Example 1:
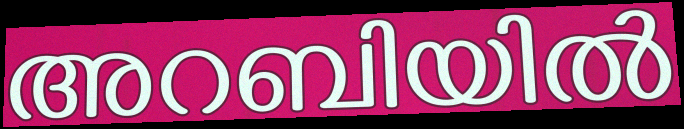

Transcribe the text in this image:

അറബിയിൽ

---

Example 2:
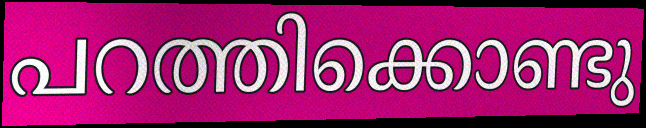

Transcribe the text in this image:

പറത്തിക്കൊണ്ടു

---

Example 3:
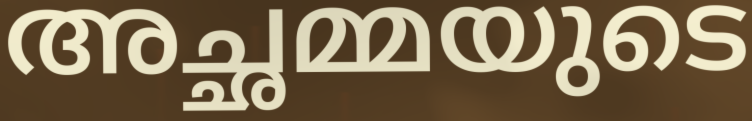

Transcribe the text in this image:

അച്ഛമ്മയുടെ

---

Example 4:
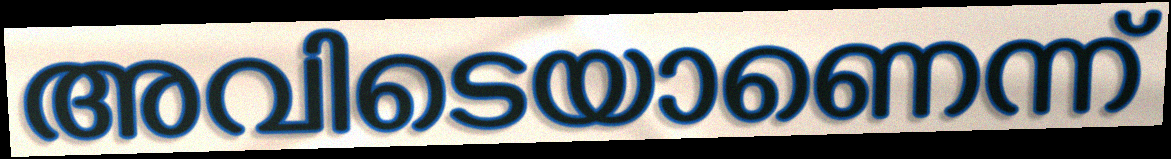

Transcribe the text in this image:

അവിടെയാണെന്ന്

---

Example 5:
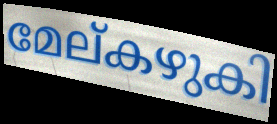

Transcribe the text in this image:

മേല്കഴുകി